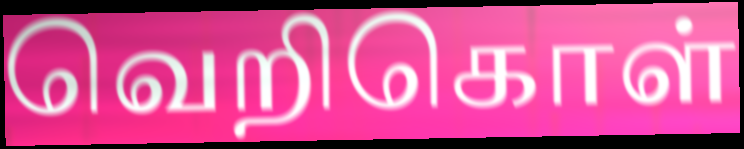
வெறிகொள்